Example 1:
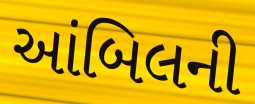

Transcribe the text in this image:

આંબિલની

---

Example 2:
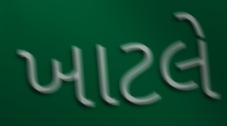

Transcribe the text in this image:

ખાટલે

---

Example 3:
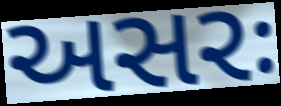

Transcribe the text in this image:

અસરઃ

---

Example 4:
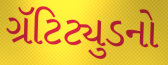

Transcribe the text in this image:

ગ્રૅટિટ્યુડનો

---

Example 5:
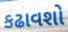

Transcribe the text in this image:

કઢાવશો